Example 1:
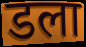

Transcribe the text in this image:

डला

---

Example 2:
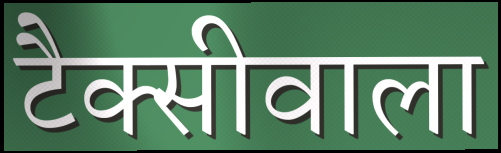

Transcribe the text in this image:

टैक्सीवाला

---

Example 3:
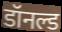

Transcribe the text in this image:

डॉनल्ड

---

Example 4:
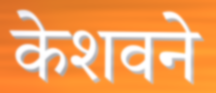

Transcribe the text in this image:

केशवने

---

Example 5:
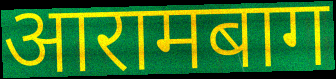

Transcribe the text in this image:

आरामबाग